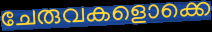
ചേരുവകളൊക്കെ